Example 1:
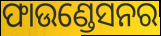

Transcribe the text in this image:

ଫାଉଣ୍ଡେସନର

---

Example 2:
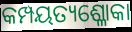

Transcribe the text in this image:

କମ୍ପୟତ୍ୟଶ୍ଳୋକା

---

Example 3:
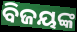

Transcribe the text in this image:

ବିଜୟଙ୍କ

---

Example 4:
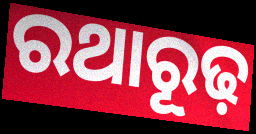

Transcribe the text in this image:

ରଥାରୂଢ଼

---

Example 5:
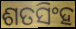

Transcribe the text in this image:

ଶତସିଂହ